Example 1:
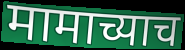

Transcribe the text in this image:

मामाच्याच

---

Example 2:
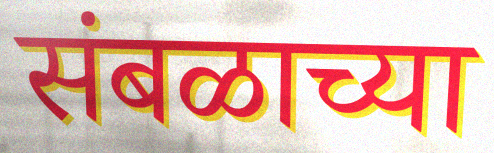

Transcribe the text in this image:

संबळाच्या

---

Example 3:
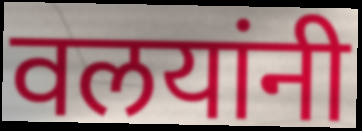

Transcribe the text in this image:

वलयांनी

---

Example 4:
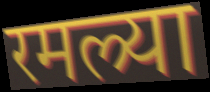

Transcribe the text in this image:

रमल्या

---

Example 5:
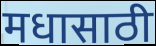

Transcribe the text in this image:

मधासाठी